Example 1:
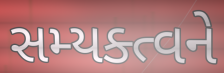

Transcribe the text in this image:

સમ્યક્ત્વને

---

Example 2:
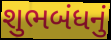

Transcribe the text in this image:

શુભબંધનું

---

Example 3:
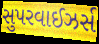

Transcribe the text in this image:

સુપરવાઈઝર્સ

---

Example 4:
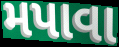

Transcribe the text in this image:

મપાવા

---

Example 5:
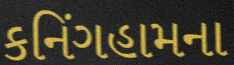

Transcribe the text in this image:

કનિંગહામના